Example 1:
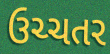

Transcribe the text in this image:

ઉચ્ચતર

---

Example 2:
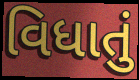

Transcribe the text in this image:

વિધાતું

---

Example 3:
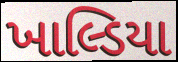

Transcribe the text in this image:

ખાલ્ડિયા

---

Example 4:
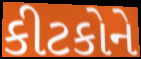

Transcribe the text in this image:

કીટકોને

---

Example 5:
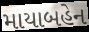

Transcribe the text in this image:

માયાબહેન